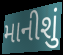
માનીશું